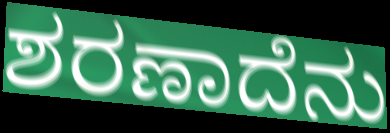
ಶರಣಾದೆನು